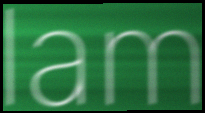
Iam